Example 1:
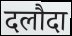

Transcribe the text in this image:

दलौदा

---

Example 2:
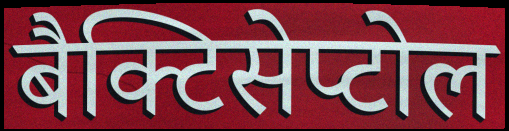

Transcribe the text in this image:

बैक्टिसेप्टोल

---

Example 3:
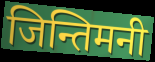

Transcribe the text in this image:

जिन्तिमनी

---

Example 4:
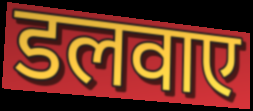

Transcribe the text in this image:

डलवाए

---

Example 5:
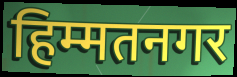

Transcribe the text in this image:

हिम्मतनगर